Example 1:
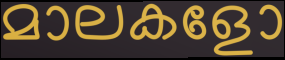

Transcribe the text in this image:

മാലകളോ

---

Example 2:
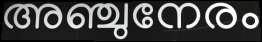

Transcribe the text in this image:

അഞ്ചുനേരം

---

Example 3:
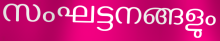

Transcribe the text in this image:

സംഘട്ടനങ്ങളും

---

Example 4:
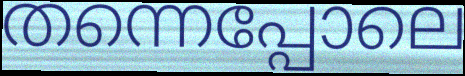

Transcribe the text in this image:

തന്നെപ്പോലെ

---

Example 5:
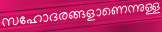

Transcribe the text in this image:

സഹോദരങ്ങളാണെന്നുള്ള